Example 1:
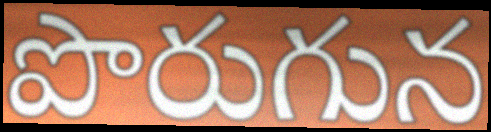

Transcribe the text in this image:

పొరుగున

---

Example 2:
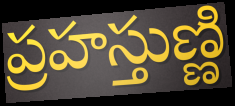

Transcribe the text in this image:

ప్రహస్తుణ్ణి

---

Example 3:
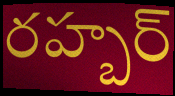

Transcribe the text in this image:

రహ్బర్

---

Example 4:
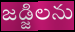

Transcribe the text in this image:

జడ్జిలను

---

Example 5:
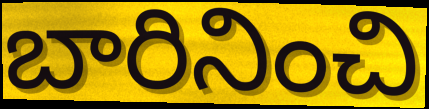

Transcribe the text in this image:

బారినించి